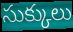
సుక్కులు